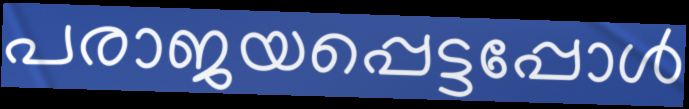
പരാജയപ്പെട്ടപ്പോൾ